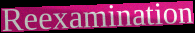
Reexamination